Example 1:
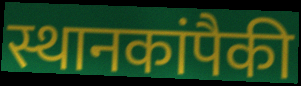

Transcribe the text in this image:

स्थानकांपैकी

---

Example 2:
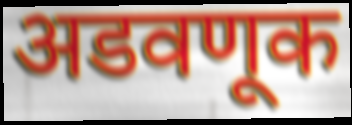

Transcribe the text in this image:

अडवणूक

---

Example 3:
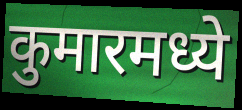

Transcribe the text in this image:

कुमारमध्ये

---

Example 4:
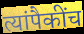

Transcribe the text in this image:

त्यांपैकींच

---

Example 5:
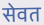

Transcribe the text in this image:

सेवत